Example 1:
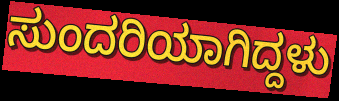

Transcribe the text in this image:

ಸುಂದರಿಯಾಗಿದ್ದಳು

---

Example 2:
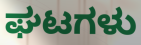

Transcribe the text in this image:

ಘಟಗಳು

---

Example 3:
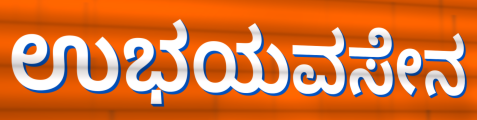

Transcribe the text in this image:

ಉಭಯವಸೇನ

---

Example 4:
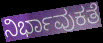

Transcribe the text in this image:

ನಿರ್ಭಾವುಕತೆ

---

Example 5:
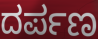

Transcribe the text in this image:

ದರ್ಪಣ